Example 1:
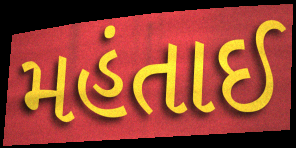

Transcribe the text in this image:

મહંતાઈ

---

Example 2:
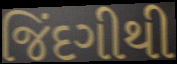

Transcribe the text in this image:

જિંદગીથી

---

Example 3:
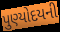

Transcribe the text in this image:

પુણ્યોદયની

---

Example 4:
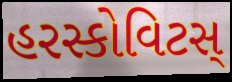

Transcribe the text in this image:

હરસ્કોવિટસ્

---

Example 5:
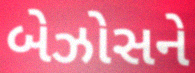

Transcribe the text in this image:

બેઝોસને